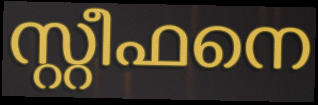
സ്റ്റീഫനെ